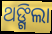
ଥଙ୍ଗିଲା